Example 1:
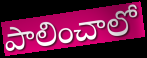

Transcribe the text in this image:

పాలించాలో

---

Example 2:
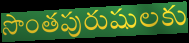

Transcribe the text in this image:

సొంతపురుషులకు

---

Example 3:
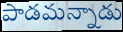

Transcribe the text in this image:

పాడమన్నాడు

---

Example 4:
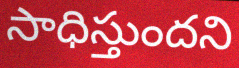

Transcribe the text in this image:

సాధిస్తుందని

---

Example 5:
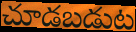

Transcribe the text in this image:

చూడబడుట